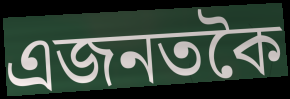
এজনতকৈ